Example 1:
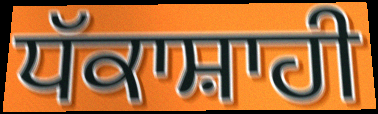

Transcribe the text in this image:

ਧੱਕਾਸ਼ਾਹੀ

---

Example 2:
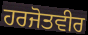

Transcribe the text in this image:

ਹਰਜੋਤਵੀਰ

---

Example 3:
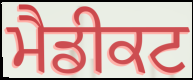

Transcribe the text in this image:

ਮੈਡੀਕਟ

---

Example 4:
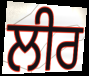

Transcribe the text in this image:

ਲੀਰ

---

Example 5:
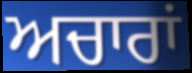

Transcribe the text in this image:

ਅਚਾਰਾਂ